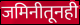
जमिनीतूनही